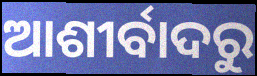
ଆଶୀର୍ବାଦରୁ